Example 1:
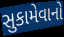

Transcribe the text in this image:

સુકામેવાનો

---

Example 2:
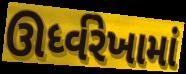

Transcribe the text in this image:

ઊર્ધ્વરેખામાં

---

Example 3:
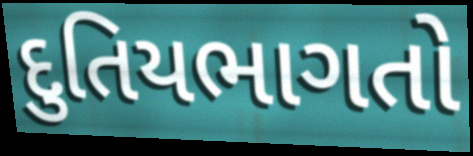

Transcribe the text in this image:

દુતિયભાગતો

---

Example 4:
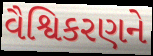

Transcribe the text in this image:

વૈશ્વિકરણને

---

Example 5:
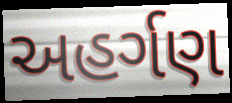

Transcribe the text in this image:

અહર્ગણ